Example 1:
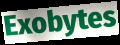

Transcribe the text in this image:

Exobytes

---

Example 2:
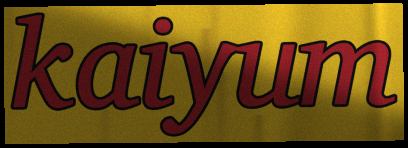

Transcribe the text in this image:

kaiyum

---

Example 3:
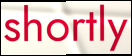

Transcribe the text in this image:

shortly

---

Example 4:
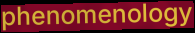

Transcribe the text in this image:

phenomenology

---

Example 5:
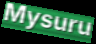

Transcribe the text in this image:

Mysuru